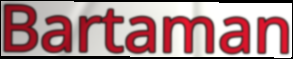
Bartaman